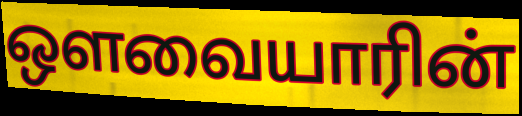
ஔவையாரின்